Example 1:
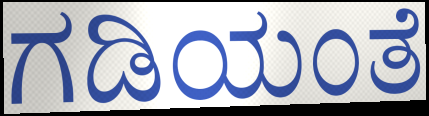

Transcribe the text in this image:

ಗಡಿಯಂತೆ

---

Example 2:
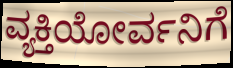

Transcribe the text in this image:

ವ್ಯಕ್ತಿಯೋರ್ವನಿಗೆ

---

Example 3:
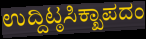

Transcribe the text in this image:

ಉದ್ದಿಟ್ಠಸಿಕ್ಖಾಪದಂ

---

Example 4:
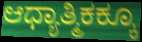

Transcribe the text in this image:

ಆಧ್ಯಾತ್ಮಿಕಕ್ಕೂ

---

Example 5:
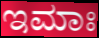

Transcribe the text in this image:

ಇಮಾಃ